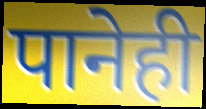
पानेही